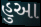
હુઆ